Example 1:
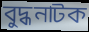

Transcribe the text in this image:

বুদ্ধনাটক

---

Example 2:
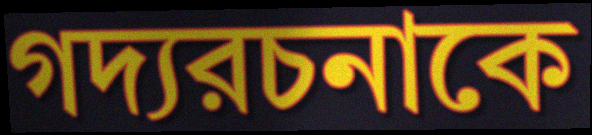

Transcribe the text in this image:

গদ্যরচনাকে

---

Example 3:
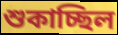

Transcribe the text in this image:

শুকাচ্ছিল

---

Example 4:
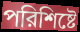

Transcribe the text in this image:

পরিশিষ্টে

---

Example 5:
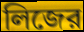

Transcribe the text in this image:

লিজের